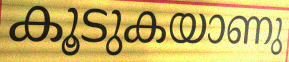
കൂടുകയാണു